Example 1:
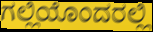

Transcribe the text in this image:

ಗಲ್ಲಿಯೊಂದರಲ್ಲಿ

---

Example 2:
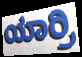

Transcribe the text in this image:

ಯಾರ್ರಿ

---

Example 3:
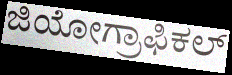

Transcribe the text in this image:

ಜಿಯೋಗ್ರಾಫಿಕಲ್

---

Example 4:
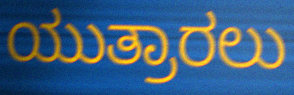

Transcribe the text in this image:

ಯುತ್ರಾರಲು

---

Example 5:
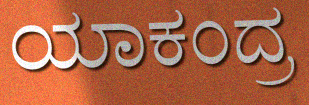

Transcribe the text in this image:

ಯಾಕಂದ್ರ